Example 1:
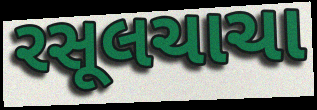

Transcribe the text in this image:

રસૂલચાચા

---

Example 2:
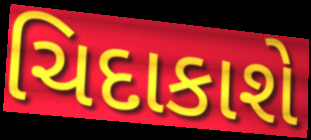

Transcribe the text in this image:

ચિદાકાશે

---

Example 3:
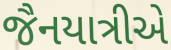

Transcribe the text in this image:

જૈનયાત્રીએ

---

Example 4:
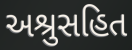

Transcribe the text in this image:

અશ્રુસહિત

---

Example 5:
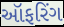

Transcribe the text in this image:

ઑફરિંગ